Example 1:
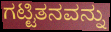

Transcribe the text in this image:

ಗಟ್ಟಿತನವನ್ನು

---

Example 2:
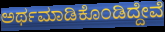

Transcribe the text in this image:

ಅರ್ಥಮಾಡಿಕೊಂಡಿದ್ದೇವೆ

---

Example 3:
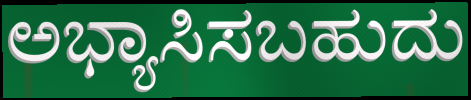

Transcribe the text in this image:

ಅಭ್ಯಾಸಿಸಬಹುದು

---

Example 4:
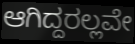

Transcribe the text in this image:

ಆಗಿದ್ದರಲ್ಲವೇ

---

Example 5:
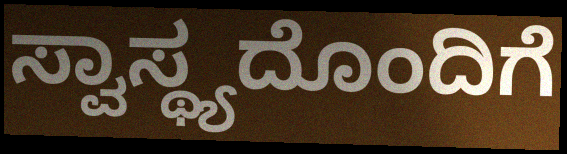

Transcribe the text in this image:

ಸ್ವಾಸ್ಥ್ಯದೊಂದಿಗೆ